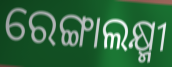
ରେଙ୍ଗାଲକ୍ଷ୍ମୀ